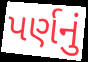
પર્ણનું